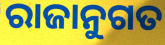
ରାଜାନୁଗତ